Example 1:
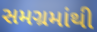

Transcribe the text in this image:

સમગ્રમાંથી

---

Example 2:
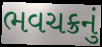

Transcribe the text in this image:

ભવચક્રનું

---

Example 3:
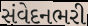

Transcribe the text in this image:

સંવેદનભરી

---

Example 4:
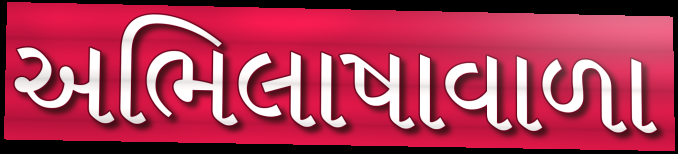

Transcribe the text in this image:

અભિલાષાવાળા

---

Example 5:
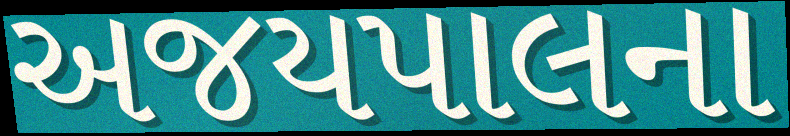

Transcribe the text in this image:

અજયપાલના